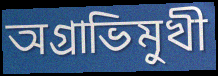
অগ্রাভিমুখী